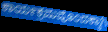
ಕಾರ್ಯಕ್ರಮವೊಂದಕ್ಕಾಗಿ